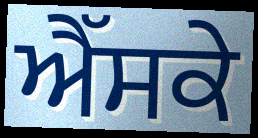
ਐੱਸਕੇ